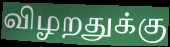
விழறதுக்கு